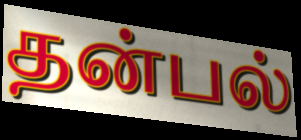
தன்பல்